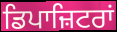
ਡਿਪਾਜ਼ਿਟਰਾਂ